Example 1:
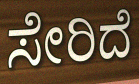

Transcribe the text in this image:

ಸೇರಿದೆ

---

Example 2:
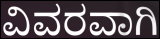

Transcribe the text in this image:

ವಿವರವಾಗಿ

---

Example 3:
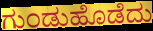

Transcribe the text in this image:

ಗುಂಡುಹೊಡೆದು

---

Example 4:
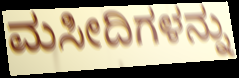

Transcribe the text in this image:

ಮಸೀದಿಗಳನ್ನು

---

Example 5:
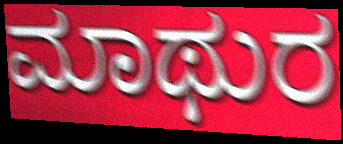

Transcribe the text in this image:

ಮಾಥುರ